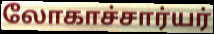
லோகாச்சார்யர்